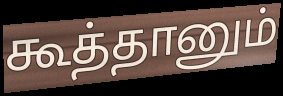
கூத்தானும்